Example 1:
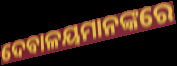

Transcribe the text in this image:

ଦେବାଳୟମାନଙ୍କରେ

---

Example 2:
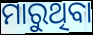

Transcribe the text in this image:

ମାରୁଥିବା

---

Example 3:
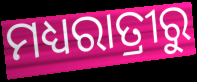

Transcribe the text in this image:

ମଧ୍ୟରାତ୍ରୀରୁ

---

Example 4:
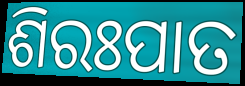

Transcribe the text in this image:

ଶିରଃପାତ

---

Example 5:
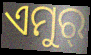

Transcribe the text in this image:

ଏମୁର୍